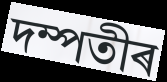
দম্পতীৰ